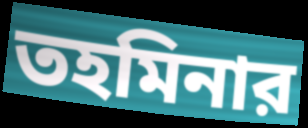
তহমিনার